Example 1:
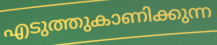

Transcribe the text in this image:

എടുത്തുകാണിക്കുന്ന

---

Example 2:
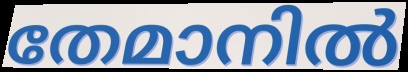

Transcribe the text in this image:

തേമാനിൽ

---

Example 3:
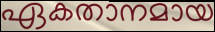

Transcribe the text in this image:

ഏകതാനമായ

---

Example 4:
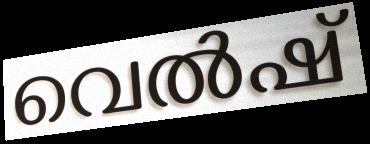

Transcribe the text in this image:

വെൽഷ്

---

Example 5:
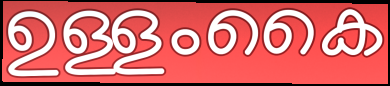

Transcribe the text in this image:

ഉള്ളംകൈ